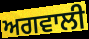
ਅਗਵਾਲੀ